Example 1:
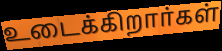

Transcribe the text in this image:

உடைக்கிறார்கள்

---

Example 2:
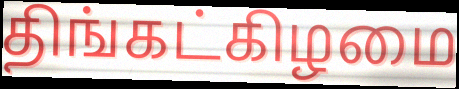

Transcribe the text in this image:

திங்கட்கிழமை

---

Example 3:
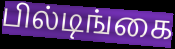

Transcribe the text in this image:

பில்டிங்கை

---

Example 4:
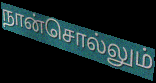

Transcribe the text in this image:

நான்சொல்லும்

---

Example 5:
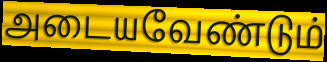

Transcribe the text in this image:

அடையவேண்டும்